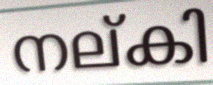
നല്‌കി